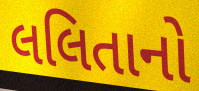
લલિતાનો